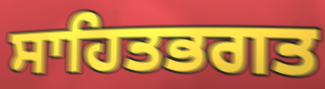
ਸਾਹਿਤਭਗਤ